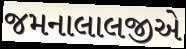
જમનાલાલજીએ